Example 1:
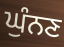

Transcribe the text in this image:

ਘੁੰਨਣ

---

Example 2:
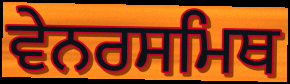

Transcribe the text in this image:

ਵੇਨਰਸਮਿਥ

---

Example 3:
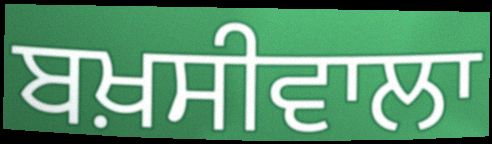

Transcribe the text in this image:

ਬਖ਼ਸੀਵਾਲਾ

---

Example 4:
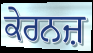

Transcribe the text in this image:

ਕੇਰਨਜ਼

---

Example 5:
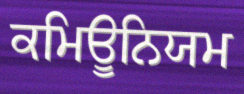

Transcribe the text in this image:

ਕਮਿਊਨਿਯਮ